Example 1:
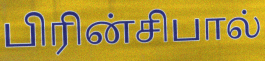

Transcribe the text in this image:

பிரின்சிபால்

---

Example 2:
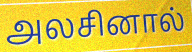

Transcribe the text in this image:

அலசினால்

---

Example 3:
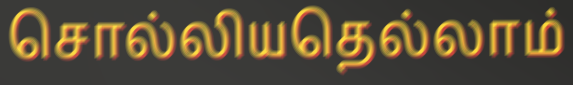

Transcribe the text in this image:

சொல்லியதெல்லாம்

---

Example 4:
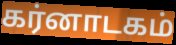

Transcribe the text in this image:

கர்னாடகம்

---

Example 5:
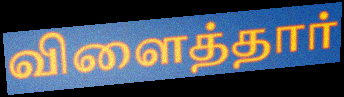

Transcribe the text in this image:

விளைத்தார்